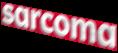
sarcoma